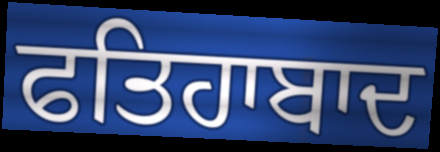
ਫਤਿਹਾਬਾਦ